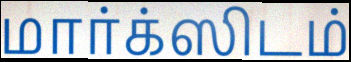
மார்க்ஸிடம்